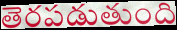
తెరపడుతుంది